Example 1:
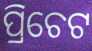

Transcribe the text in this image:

ପ୍ରିଚେଟ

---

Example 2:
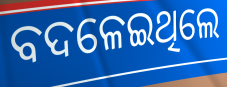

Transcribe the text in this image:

ବଦଳେଇଥିଲେ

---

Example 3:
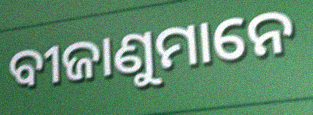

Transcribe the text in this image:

ବୀଜାଣୁମାନେ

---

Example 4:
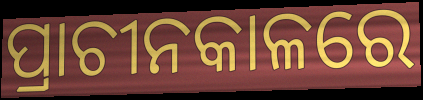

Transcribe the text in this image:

ପ୍ରାଚୀନକାଳରେ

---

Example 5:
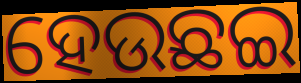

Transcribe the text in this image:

ହେଉଛଇ